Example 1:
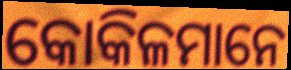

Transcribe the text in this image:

କୋକିଳମାନେ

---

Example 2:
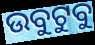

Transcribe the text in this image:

ଉବୁଟୁବୁ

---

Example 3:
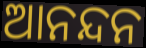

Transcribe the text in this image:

ଆନନ୍ଦନ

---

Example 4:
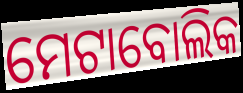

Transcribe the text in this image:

ମେଟାବୋଲିକ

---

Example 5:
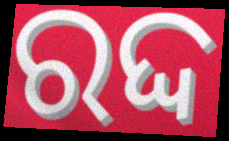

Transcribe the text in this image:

ରଦ୍ଦ